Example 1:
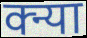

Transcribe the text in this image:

क्न्या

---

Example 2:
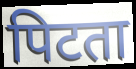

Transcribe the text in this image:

पिटता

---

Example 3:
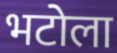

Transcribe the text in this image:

भटोला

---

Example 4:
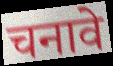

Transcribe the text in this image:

चनावे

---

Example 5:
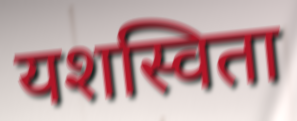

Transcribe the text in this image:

यशस्विता